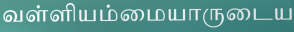
வள்ளியம்மையாருடைய